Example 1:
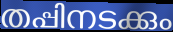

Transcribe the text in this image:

തപ്പിനടക്കും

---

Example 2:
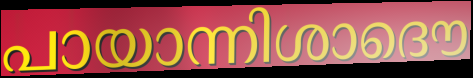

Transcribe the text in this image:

പായാന്നിശാദൌ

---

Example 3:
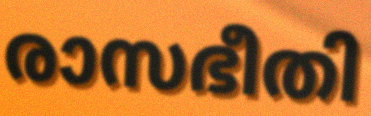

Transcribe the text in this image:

രാസഭീതി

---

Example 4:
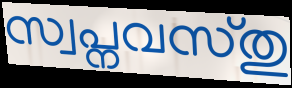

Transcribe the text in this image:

സ്വപ്നവസ്തു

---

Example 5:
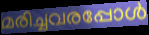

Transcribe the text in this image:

മരിച്ചവരപ്പോൾ